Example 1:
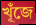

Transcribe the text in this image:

খূঁজে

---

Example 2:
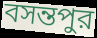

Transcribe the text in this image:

বসন্তপুর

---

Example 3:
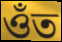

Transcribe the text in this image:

ওঁত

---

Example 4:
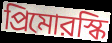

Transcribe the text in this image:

প্রিমোরস্কি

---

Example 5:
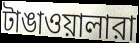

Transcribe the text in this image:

টাঙাওয়ালারা